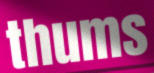
thums